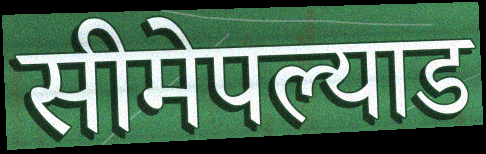
सीमेपल्याड